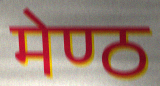
मेण्ठ